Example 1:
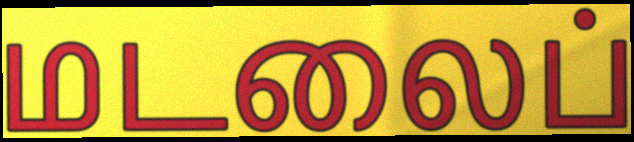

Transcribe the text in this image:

மடலைப்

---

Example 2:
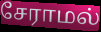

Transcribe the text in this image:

சேராமல்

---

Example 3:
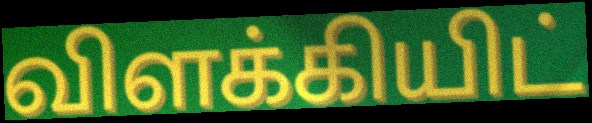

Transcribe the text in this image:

விளக்கியிட்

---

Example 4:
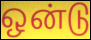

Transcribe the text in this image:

ஒன்டு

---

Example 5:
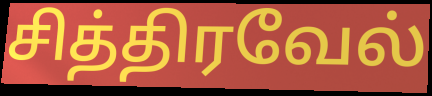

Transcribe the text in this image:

சித்திரவேல்